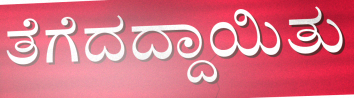
ತೆಗೆದದ್ದಾಯಿತು